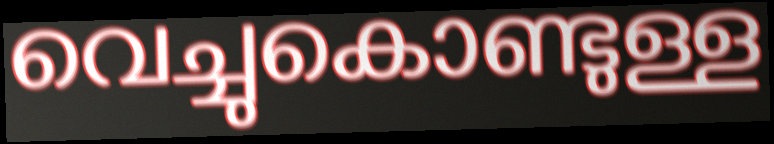
വെച്ചുകൊണ്ടുള്ള